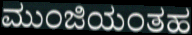
ಮುಂಜಿಯಂತಹ